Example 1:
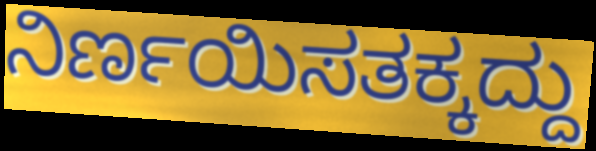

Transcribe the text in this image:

ನಿರ್ಣಯಿಸತಕ್ಕದ್ದು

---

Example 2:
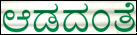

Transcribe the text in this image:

ಆಡದಂತೆ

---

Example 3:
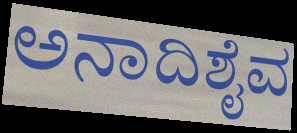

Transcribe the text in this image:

ಅನಾದಿಶೈವ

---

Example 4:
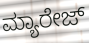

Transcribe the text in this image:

ಮ್ಯಾರೇಜ್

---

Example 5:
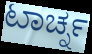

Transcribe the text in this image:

ಟಾರ್ಚ್ನ